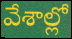
వేశాల్లో